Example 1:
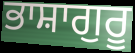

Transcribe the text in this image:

ਭਾਸ਼ਾਗੁਰੂ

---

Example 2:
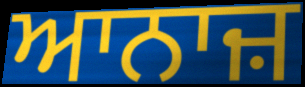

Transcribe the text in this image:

ਆਨਾਜ਼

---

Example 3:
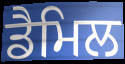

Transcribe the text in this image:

ਡੈਮਿਲ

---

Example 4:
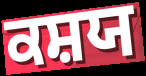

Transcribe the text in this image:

ਕਸ਼ਯ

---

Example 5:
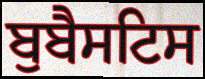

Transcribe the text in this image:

ਬੁਬੈਸਟਿਸ